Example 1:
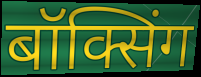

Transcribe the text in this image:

बॉक्सिंग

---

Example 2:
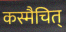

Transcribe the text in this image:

कस्मैचित्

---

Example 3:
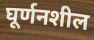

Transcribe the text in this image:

घूर्णनशील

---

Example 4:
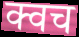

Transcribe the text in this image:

क्वच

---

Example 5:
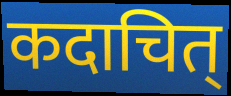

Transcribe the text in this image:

कदाचित्